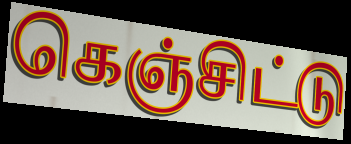
கெஞ்சிட்டு